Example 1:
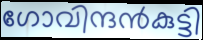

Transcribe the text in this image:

ഗോവിന്ദൻകുട്ടി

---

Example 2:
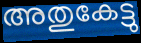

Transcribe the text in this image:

അതുകേട്ടു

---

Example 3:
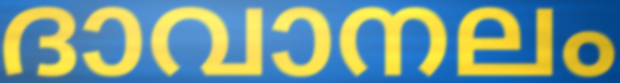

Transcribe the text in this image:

ദാവാനലം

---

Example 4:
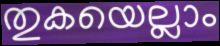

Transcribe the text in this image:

തുകയെല്ലാം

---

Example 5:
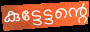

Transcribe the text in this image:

കുട്ടേട്ടന്റെ